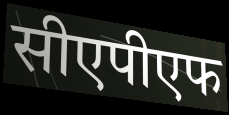
सीएपीएफ